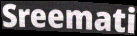
Sreemati